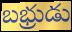
బభ్రుడు